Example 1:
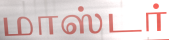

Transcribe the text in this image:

மாஸ்டர்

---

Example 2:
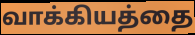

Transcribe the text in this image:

வாக்கியத்தை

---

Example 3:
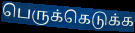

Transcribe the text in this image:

பெருக்கெடுக்க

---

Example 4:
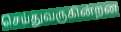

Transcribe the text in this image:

செய்துவருகின்றன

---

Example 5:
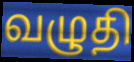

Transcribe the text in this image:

வழுதி